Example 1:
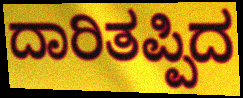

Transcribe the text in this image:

ದಾರಿತಪ್ಪಿದ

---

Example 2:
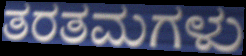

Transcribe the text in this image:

ತರತಮಗಳು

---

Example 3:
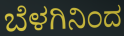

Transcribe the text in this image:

ಬೆಳಗಿನಿಂದ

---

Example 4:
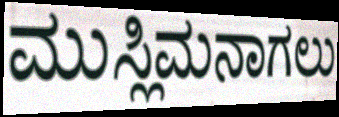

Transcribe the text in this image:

ಮುಸ್ಲಿಮನಾಗಲು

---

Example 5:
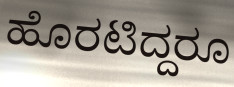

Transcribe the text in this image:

ಹೊರಟಿದ್ದರೂ